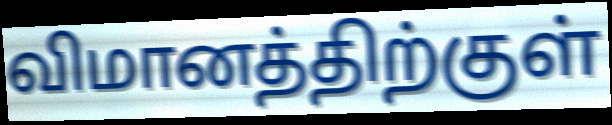
விமானத்திற்குள்